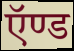
ऍण्ड